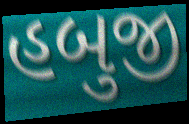
હબુજી